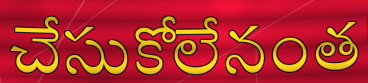
చేసుకోలేనంత